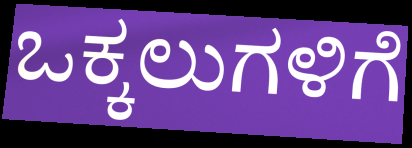
ಒಕ್ಕಲುಗಳಿಗೆ